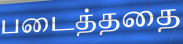
படைத்ததை